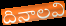
దినాలవి